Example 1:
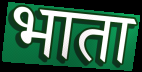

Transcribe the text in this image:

भाता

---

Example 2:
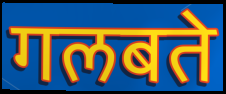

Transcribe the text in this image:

गलबते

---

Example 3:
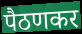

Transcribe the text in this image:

पैठणकर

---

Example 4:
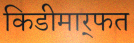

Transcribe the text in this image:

किडीमार्फत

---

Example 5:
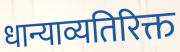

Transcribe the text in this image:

धान्याव्यतिरिक्त